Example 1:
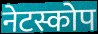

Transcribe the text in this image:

नेटस्कोप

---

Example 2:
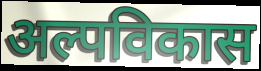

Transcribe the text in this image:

अल्पविकास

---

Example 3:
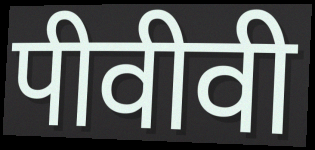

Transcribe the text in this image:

पीवीवी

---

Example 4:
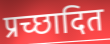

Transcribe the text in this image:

प्रच्छादित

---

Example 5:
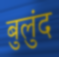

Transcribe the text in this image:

बुलुंद